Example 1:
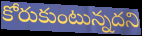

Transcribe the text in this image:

కోరుకుంటున్నదని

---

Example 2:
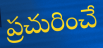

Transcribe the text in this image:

ప్రచురించే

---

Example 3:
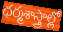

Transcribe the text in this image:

ధర్మశాస్త్రాల్లో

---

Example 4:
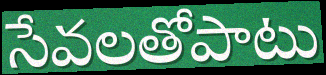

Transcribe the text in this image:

సేవలతోపాటు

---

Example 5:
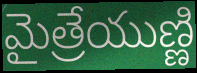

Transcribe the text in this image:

మైత్రేయుణ్ణి